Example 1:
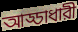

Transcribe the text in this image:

আড্ডাধারী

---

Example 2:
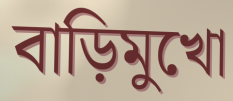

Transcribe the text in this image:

বাড়িমুখো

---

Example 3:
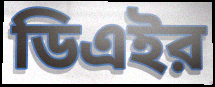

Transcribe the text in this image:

ডিএইর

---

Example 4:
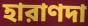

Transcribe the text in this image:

হারাণদা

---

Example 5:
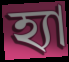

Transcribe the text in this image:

হ্যা